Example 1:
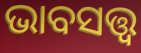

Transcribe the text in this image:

ଭାବସତ୍ତ୍ୱ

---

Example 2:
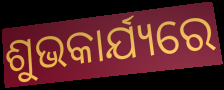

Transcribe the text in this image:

ଶୁଭକାର୍ଯ୍ୟରେ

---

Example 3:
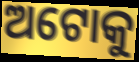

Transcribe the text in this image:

ଅଟୋକୁ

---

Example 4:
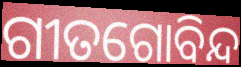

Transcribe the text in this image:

ଗୀତଗୋବିନ୍ଦ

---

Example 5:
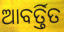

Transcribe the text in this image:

ଆବର୍ତ୍ତିତ